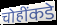
चोहींकडे